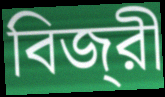
বিজ্‌রী